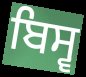
ਬਿਸ੍ਵ